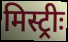
मिस्ट्रीः